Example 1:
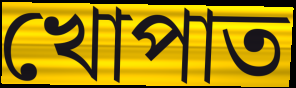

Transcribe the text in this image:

খোপাত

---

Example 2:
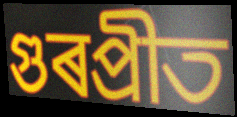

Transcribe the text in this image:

গুৰপ্ৰীত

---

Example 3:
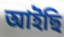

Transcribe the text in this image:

আইছি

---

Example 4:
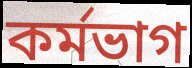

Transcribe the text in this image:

কৰ্মভাগ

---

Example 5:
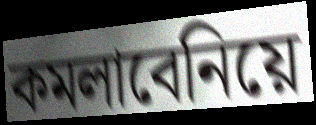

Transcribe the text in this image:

কমলাবেনিয়ে